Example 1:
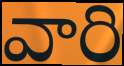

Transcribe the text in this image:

వారి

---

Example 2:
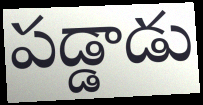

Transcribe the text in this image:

పడ్డాడు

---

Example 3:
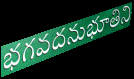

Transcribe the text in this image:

భగవదనుభూతిని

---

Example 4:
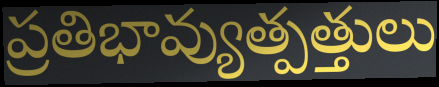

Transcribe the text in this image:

ప్రతిభావ్యుత్పత్తులు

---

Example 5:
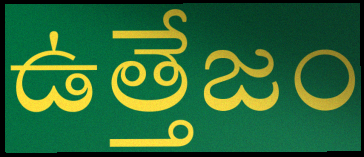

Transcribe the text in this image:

ఉత్తేజం